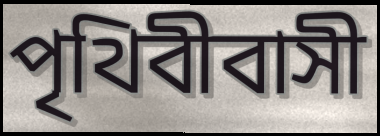
পৃথিবীবাসী